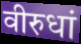
वीरुधां